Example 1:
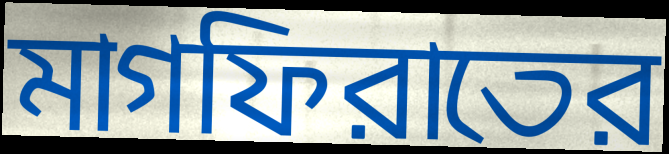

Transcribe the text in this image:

মাগফিরাতের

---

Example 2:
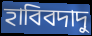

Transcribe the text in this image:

হাবিবদাদু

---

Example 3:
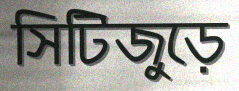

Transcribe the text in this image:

সিটিজুড়ে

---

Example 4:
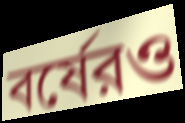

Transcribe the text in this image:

বর্ষেরও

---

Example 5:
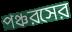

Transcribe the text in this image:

পঞ্চরসের